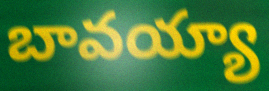
బావయ్యా